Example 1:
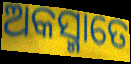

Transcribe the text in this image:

ଅକସ୍ମାତେ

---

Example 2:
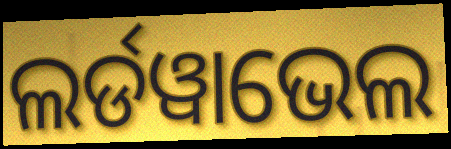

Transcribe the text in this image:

ଲର୍ଡୱାଭେଲ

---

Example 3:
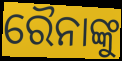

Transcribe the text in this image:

ରୈନାଙ୍କୁ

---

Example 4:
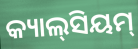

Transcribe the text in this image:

କ୍ୟାଲ୍‌ସିୟମ୍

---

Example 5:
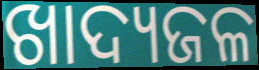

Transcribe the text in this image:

ଖାଦ୍ୟଜଳ